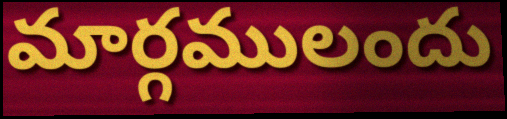
మార్గములందు